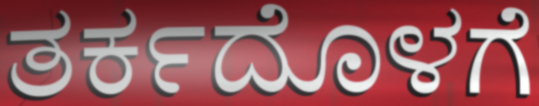
ತರ್ಕದೊಳಗೆ